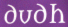
dudh